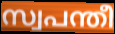
സ്വപന്തീ